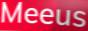
Meeus